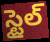
స్టైల్